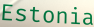
Estonia